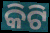
କିଟି